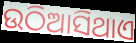
ଉଠିଆସିଥାଏ